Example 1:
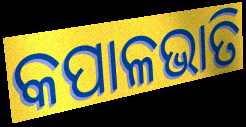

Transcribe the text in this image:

କପାଳଭାତି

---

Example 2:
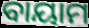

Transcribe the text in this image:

ବାୟାମ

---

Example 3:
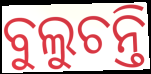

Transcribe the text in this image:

ବୁଲୁଚନ୍ତି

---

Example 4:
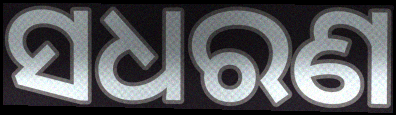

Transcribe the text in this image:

ସଧରଣ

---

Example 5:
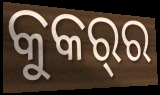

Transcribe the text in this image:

କୁକର୍‌ର